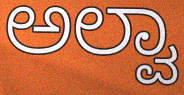
ಅಲ್ವಾ